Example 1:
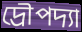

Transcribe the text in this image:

দ্রৌপদ্যা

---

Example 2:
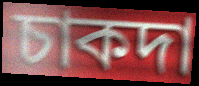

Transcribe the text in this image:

চাকদা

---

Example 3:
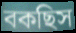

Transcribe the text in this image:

বকছিস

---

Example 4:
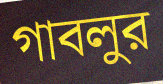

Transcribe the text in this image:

গাবলুর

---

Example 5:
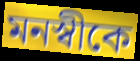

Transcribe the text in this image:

মনস্বীকে